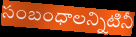
సంబంధాలన్నిటినీ